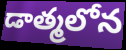
డాత్మలోన